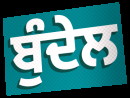
ਬੁੰਦੇਲ